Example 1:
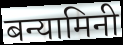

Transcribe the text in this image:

बन्यामिनी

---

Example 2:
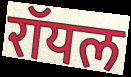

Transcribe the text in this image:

रॉयल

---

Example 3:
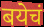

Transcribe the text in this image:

बयेचं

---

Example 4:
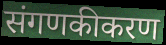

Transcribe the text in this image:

संगणकीकरण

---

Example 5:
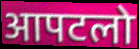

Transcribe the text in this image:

आपटलो